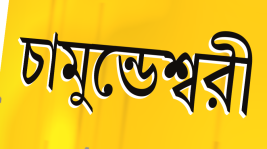
চামুন্ডেশ্বরী